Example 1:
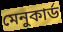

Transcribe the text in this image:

মেনুকার্ড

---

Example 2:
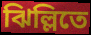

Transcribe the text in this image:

ঝিল্লিতে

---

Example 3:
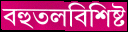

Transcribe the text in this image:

বহুতলবিশিষ্ট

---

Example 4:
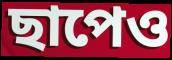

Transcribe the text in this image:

ছাপেও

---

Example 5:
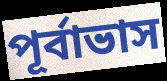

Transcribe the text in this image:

পূর্বাভাস